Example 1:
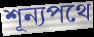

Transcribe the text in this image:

শূন্যপথে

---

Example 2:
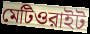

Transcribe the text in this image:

মেটিওরাইট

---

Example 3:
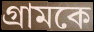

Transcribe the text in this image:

গ্রামকে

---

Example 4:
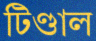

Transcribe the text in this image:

টিণ্ডাল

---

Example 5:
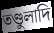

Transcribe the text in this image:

তণ্ডুলাদি